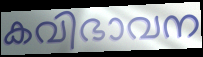
കവിഭാവന